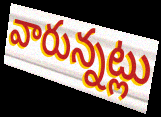
వారున్నట్లు